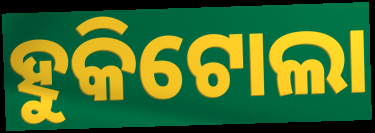
ହୁକିଟୋଲା